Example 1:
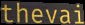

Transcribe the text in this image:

thevai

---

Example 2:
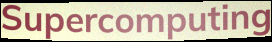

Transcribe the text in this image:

Supercomputing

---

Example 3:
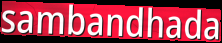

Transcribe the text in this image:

sambandhada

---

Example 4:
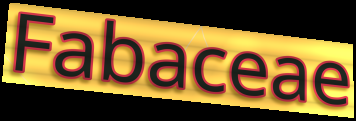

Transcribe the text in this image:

Fabaceae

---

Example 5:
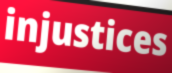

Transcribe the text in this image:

injustices